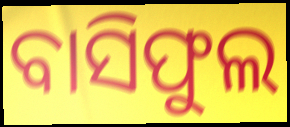
ବାସିଫୁଲ